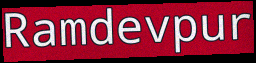
Ramdevpur